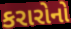
કરારોનો